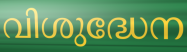
വിശുദ്ധേന